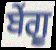
ਬੇਂਗੂ